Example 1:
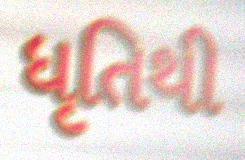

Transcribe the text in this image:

ધૃતિથી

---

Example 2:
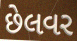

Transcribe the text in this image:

છેલવર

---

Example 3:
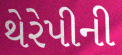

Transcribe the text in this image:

થેરેપીની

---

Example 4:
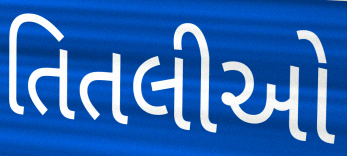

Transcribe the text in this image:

તિતલીઓ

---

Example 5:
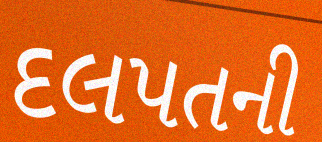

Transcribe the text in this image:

દલપતની